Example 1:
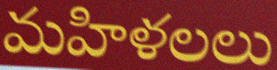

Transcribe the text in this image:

మహిళలలు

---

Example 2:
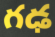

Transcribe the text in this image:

గఢ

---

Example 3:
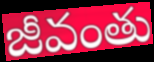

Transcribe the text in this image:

జీవంతు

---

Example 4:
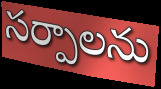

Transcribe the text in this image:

సర్పాలను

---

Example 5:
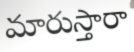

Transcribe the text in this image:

మారుస్తారా